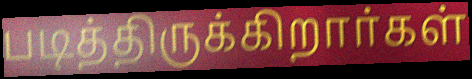
படித்திருக்கிறார்கள்